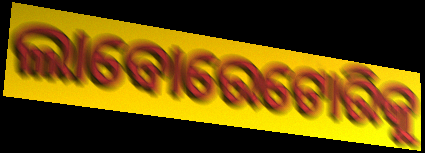
ଲାବୋରେଟୋରିକୁ